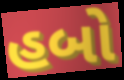
હબો